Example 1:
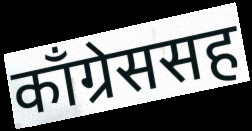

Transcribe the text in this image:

काँग्रेससह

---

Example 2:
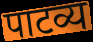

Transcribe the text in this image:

पाटव्य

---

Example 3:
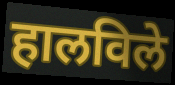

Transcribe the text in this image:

हालविले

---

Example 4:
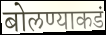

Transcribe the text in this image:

बोलण्याकडं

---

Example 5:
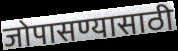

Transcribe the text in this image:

जोपासण्यासाठी